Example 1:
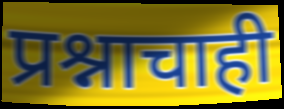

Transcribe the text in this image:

प्रश्नाचाही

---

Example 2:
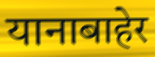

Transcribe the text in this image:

यानाबाहेर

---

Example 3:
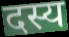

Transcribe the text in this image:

दस्य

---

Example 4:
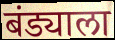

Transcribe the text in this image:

बंड्याला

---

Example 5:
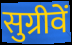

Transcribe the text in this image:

सुग्रीवें